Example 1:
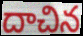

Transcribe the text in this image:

దాచిన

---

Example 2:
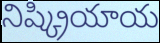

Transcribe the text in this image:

నిష్క్రియాయ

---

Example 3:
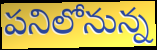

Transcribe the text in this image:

పనిలోనున్న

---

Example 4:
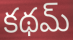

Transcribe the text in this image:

కథమ్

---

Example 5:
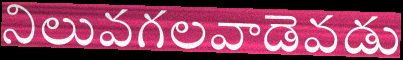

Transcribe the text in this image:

నిలువగలవాడెవడు